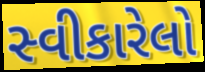
સ્વીકારેલો